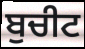
ਬੁਚੀਟ